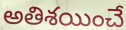
అతిశయించే